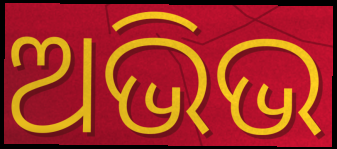
ଅଭିଭ